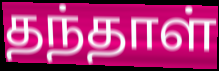
தந்தாள்